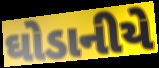
ઘોડાનીયે